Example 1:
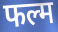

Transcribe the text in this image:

फल्म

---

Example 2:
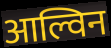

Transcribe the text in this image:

आल्विन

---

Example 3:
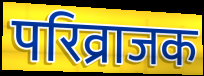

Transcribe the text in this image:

परिव्राजक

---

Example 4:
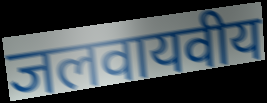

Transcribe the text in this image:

जलवायवीय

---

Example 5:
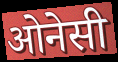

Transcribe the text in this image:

ओनेसी